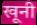
खूनी